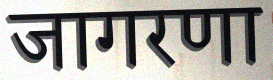
जागरणा